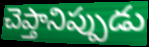
చెప్తానిప్పుడు